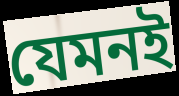
যেমনই